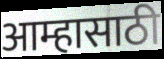
आम्हासाठी